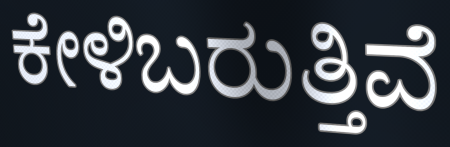
ಕೇಳಿಬರುತ್ತಿವೆ